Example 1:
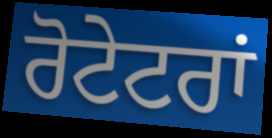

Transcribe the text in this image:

ਰੋਟੇਟਰਾਂ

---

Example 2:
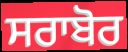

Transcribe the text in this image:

ਸਰਾਬੋਰ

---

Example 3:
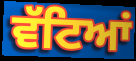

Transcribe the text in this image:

ਵੱਟਿਆਂ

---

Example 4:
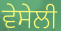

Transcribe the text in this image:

ਵੇਸੇਲੀ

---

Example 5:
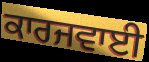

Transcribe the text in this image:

ਕਾਰਜਵਾਈ